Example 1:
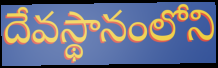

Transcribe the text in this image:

దేవస్థానంలోని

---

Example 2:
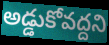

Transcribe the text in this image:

అడ్డుకోవద్దని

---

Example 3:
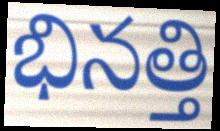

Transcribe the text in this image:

భినత్తి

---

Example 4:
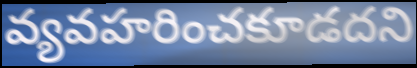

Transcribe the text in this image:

వ్యవహరించకూడదని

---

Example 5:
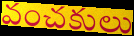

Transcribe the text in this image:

వంచకులు